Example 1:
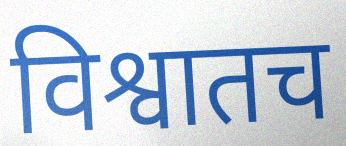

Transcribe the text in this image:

विश्वातच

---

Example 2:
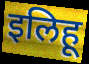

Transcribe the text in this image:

इलिहू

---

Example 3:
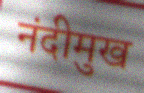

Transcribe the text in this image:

नंदीमुख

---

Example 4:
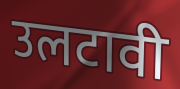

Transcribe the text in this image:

उलटावी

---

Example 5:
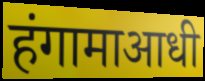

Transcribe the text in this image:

हंगामाआधी